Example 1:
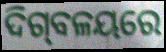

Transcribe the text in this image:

ଦିଗ୍‍ବଳୟରେ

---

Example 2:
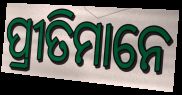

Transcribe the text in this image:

ପ୍ରୀତିମାନେ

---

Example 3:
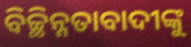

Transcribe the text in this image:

ବିଚ୍ଛିନ୍ନତାବାଦୀଙ୍କୁ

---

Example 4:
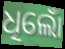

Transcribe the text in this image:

ଧିଲୋଁ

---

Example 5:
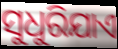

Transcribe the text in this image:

ସୁଧୁରିଯାଏ